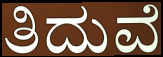
ತಿದುವೆ